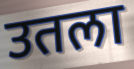
उतला